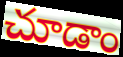
చూడాం